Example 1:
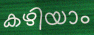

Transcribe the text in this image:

കഴിയാം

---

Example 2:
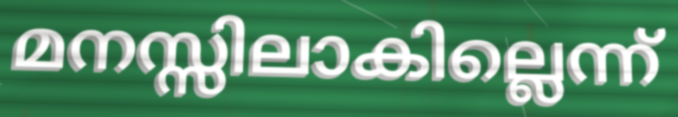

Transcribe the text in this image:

മനസ്സിലാകില്ലെന്ന്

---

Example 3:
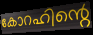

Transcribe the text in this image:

കോറഹിന്റെ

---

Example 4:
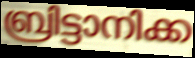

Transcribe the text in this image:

ബ്രിട്ടാനിക്ക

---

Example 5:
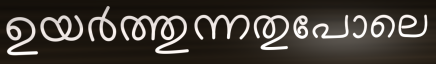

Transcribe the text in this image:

ഉയർത്തുന്നതുപോലെ